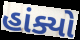
હાંક્યો